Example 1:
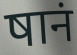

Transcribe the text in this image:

षानं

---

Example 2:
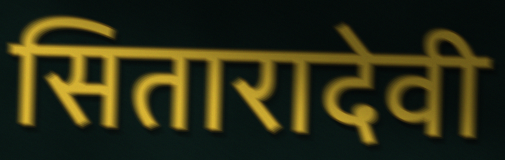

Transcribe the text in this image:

सितारादेवी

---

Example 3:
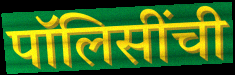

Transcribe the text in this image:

पॉलिसींची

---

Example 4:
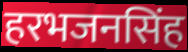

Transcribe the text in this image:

हरभजनसिंह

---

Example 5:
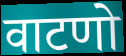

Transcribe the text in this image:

वाटणो